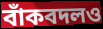
বাঁকবদলও